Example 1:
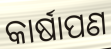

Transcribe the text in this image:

କାର୍ଷାପଣ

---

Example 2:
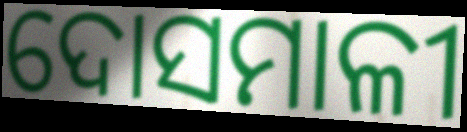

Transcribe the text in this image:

ଦୋସମାଳୀ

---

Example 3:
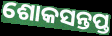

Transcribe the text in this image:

ଶୋକସନ୍ତପ୍ତ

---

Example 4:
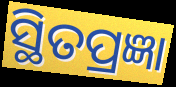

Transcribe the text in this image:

ସ୍ଥିତପ୍ରଜ୍ଞା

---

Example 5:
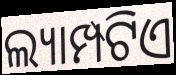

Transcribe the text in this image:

ଲ୍ୟାମ୍ପଟିଏ